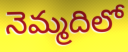
నెమ్మదిలో